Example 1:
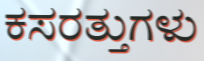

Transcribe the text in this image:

ಕಸರತ್ತುಗಳು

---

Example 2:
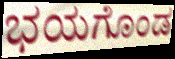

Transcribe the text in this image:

ಭಯಗೊಂಡ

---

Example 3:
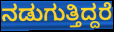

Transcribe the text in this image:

ನಡುಗುತ್ತಿದ್ದರೆ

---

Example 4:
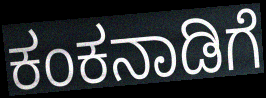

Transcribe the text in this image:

ಕಂಕನಾಡಿಗೆ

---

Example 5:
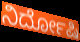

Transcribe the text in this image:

ನಿರ್ದೋಷಿ